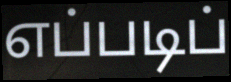
எப்படிப்